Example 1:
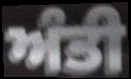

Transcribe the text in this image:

ਅੰਤੀ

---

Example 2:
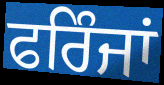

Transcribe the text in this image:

ਫਰਿੰਜਾਂ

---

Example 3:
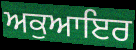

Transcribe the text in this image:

ਅਕੁਆਇਰ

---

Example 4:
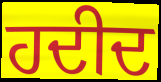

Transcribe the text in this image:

ਹਦੀਦ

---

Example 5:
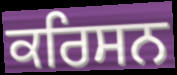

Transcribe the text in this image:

ਕਰਿਸਨ